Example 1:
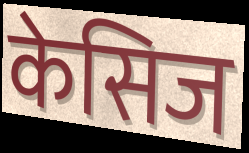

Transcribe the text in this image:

केसिज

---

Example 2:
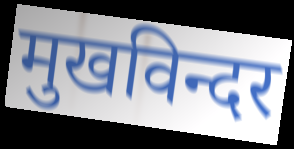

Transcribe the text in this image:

मुखविन्दर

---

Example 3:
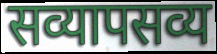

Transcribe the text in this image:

सव्यापसव्य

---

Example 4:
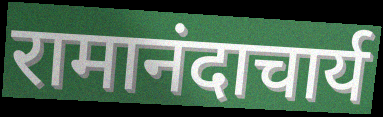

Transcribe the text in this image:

रामानंदाचार्य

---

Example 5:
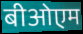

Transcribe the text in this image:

बीओएम